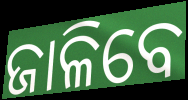
ଜାଳିବେ